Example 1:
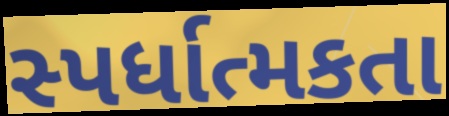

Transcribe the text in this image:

સ્પર્ધાત્મકતા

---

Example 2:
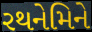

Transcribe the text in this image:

રથનેમિને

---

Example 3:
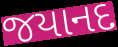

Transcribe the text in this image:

જયાનદ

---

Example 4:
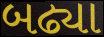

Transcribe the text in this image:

બઢ્યા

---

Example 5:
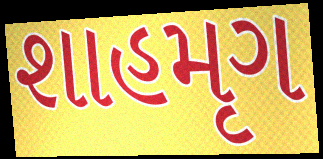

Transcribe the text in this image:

શાહમૃગ